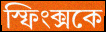
স্ফিংক্সকে